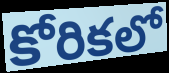
కోరికలో